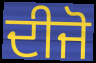
ਦੀਜੋ